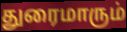
துரைமாரும்